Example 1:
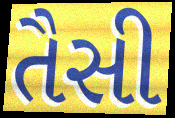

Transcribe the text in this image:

તૈસી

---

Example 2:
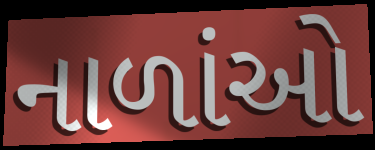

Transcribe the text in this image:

નાળાંઓ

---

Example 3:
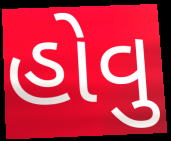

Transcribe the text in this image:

હોવુ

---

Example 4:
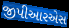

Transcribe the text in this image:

જીપીઆરએસ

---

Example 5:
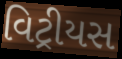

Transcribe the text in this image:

વિટ્રીયસ